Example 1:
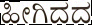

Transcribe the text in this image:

ಹೀಗಿದದ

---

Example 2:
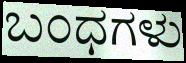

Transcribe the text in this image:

ಬಂಧಗಳು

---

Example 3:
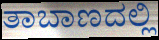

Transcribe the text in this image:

ತಾಬಾಣದಲ್ಲಿ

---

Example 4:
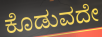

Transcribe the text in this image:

ಕೊಡುವದೇ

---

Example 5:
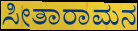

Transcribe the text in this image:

ಸೀತಾರಾಮನ